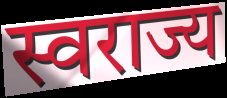
स्वराज्य